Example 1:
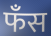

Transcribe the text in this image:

फँस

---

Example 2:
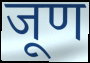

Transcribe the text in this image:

जूण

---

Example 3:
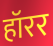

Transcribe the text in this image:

हॉरर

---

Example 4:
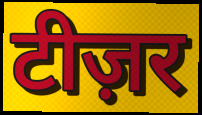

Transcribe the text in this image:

टीज़र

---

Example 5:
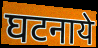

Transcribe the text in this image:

घटनाये